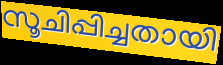
സൂചിപ്പിച്ചതായി